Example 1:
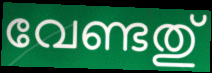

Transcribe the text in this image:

വേണ്ടതു്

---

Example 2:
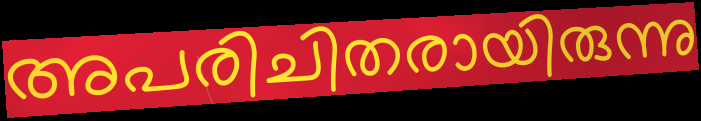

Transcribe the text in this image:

അപരിചിതരായിരുന്നു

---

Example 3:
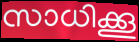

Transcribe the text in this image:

സാധിക്കൂ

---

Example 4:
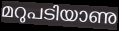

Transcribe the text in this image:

മറുപടിയാണു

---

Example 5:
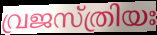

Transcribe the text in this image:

വ്രജസ്ത്രിയഃ